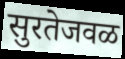
सुरतेजवळ